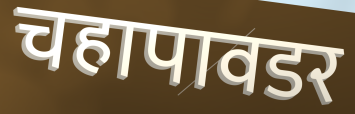
चहापावडर